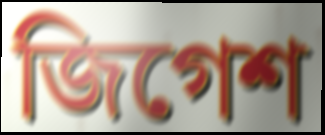
জিগেশ